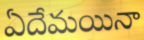
ఏదేమయినా